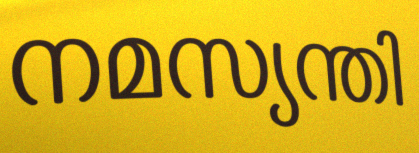
നമസ്യന്തി